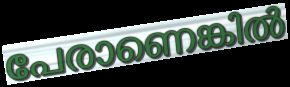
പേരാണെങ്കിൽ